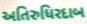
અતિરુધિરદાબ